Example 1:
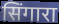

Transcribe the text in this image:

सिंगारा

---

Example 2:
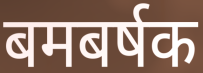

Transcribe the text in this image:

बमबर्षक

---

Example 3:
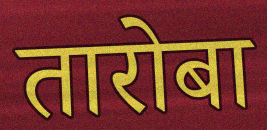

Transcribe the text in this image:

तारोबा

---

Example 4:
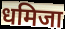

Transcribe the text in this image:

धमिजा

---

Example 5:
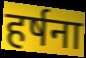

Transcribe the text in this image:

हर्षना